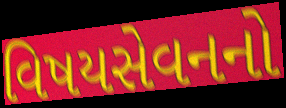
વિષયસેવનનો